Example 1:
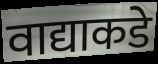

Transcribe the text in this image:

वाद्याकडे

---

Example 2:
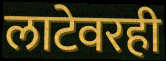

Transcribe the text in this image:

लाटेवरही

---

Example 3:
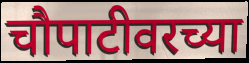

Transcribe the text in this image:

चौपाटीवरच्या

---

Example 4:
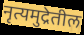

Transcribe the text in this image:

नृत्यमुद्रेतील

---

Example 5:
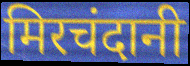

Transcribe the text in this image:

मिरचंदानी